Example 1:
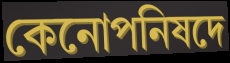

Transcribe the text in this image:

কেনোপনিষদে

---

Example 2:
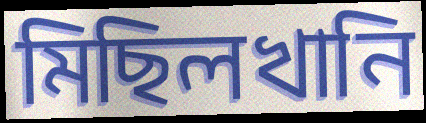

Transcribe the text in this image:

মিছিলখানি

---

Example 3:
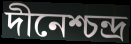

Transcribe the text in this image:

দীনেশ্চন্দ্র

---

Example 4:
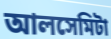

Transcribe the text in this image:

আলসেমিটা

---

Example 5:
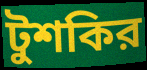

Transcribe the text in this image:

টুশকির